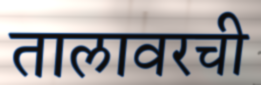
तालावरची